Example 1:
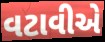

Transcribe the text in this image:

વટાવીએ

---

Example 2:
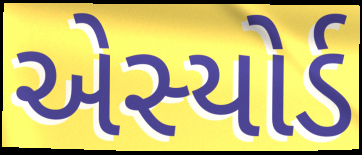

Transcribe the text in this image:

એસ્યોર્ડ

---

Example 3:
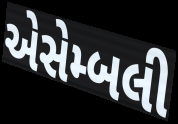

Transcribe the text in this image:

એસેમ્બલી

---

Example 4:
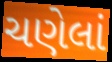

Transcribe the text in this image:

ચણેલાં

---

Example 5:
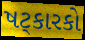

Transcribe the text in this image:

ષટ્કારકો